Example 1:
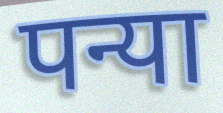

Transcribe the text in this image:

पन्या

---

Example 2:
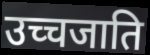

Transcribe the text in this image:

उच्चजाति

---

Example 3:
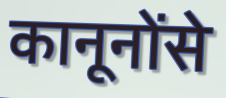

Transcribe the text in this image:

कानूनोंसे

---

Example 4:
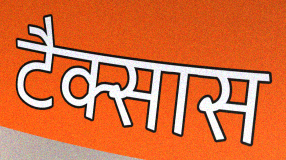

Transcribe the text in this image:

टैक्सास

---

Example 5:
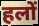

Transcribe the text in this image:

हलों